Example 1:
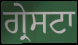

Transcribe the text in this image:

ਗ੍ਰੇਸਟਾ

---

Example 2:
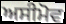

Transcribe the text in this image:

ਅਸੀਮੋਵ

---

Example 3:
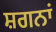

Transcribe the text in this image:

ਸ਼ਗਨਾਂ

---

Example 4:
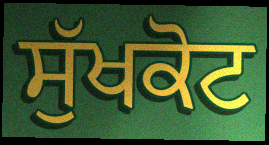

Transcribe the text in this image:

ਸੁੱਖਕੋਟ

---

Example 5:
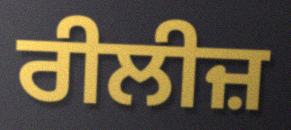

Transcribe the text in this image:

ਰੀਲੀਜ਼